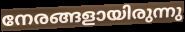
നേരങ്ങളായിരുന്നു